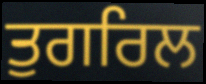
ਤੁਗਰਿਲ